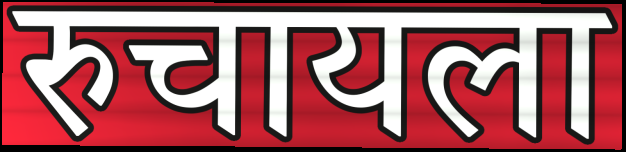
रुचायला